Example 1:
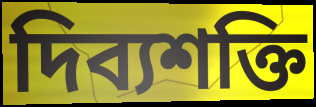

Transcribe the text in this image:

দিব্যশক্তি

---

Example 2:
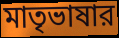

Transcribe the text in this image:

মাতৃভাষার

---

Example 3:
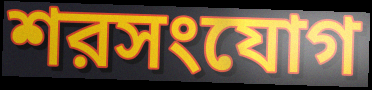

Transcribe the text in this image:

শরসংযোগ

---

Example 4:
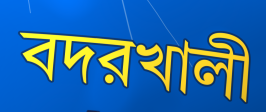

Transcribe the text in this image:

বদরখালী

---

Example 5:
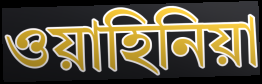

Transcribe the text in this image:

ওয়াহিনিয়া